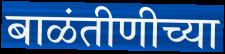
बाळंतीणीच्या